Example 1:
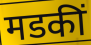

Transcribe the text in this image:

मडकीं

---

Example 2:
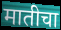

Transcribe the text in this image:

मातीचा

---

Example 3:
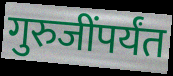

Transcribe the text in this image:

गुरुजींपर्यंत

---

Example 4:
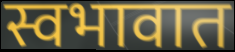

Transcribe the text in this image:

स्वभावात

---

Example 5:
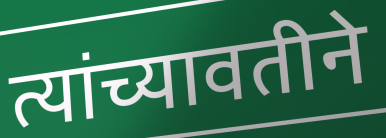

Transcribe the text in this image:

त्यांच्यावतीने